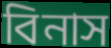
বিনাস